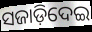
ସଜାଡ଼ିଦେଇ